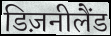
डिज़नीलैंड